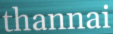
thannai